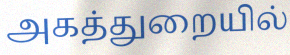
அகத்துறையில்